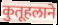
कुतूहलाने